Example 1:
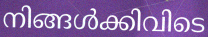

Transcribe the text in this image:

നിങ്ങൾക്കിവിടെ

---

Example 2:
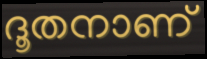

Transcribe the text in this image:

ദൂതനാണ്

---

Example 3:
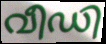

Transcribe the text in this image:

വീഡി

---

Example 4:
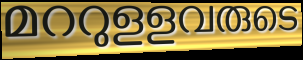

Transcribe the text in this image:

മററുളളവരുടെ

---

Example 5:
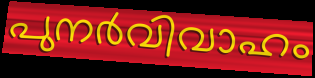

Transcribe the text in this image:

പുനർവിവാഹം